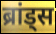
ब्रांड्स